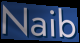
Naib